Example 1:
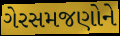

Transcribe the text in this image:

ગેરસમજણોને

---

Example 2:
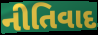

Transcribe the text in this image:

નીતિવાદ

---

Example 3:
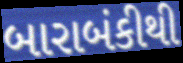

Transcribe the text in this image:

બારાબંકીથી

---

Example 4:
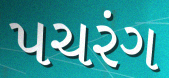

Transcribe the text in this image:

પચરંગ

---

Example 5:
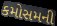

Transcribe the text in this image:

કમોસમની